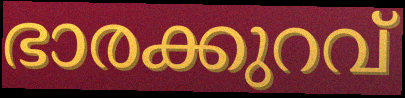
ഭാരക്കുറവ്